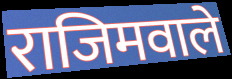
राजिमवाले